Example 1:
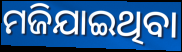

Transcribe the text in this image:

ମଜିଯାଇଥିବା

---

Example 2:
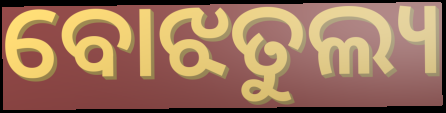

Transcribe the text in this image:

ବୋଝତୁଲ୍ୟ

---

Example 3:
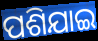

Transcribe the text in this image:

ପଶିଯାଇ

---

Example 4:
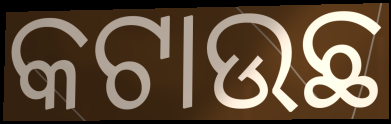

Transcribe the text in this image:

କଟାଉଛ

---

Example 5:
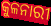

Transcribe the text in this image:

କୁଳନାରୀ